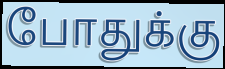
போதுக்கு